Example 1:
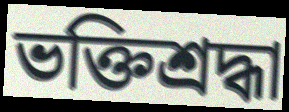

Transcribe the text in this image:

ভক্তিশ্রদ্ধা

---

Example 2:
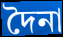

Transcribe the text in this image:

দৈনা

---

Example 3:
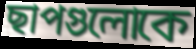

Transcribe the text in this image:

ছাপগুলোকে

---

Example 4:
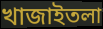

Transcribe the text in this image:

খাজাইতলা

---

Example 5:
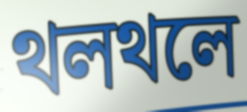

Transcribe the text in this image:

থলথলে